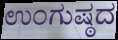
ಉಂಗುಷ್ಠದ